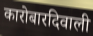
कारोबारदिवाली